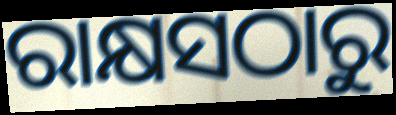
ରାକ୍ଷସଠାରୁ